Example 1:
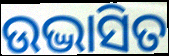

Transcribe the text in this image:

ଉଦ୍ଭାସିତ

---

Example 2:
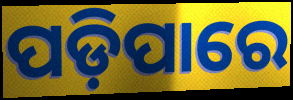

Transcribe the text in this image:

ପଡ଼ିପାରେ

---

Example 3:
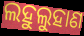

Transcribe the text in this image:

ଲହୁଲୁହାଣ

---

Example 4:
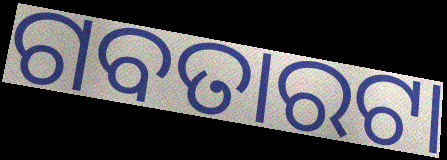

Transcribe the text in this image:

ଗବତାରଟା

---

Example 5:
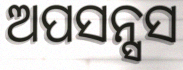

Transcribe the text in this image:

ଅପସନ୍ସସ